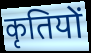
कृतियों